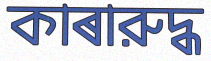
কাৰাৰুদ্ধ